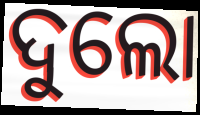
ଦୁଲୋ